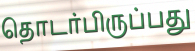
தொடர்பிருப்பது